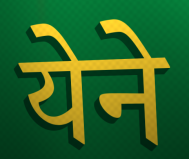
येने